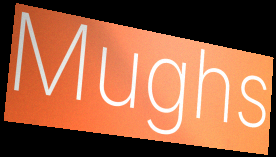
Mughs